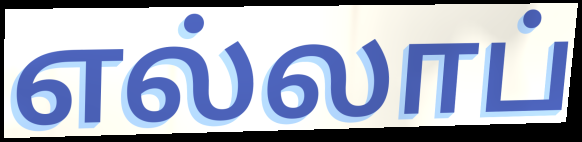
எல்லாப்